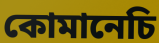
কোমানেচি